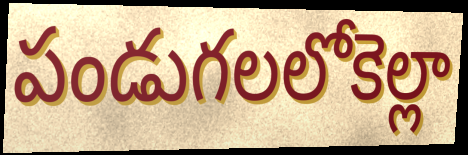
పండుగలలోకెల్లా